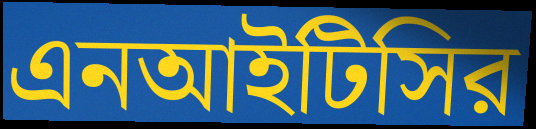
এনআইটিসির